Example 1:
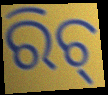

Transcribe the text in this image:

ରିଚ୍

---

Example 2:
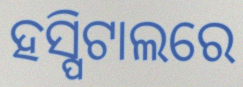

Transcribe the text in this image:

ହସ୍ପିଟାଲରେ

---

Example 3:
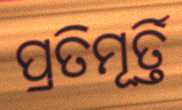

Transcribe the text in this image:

ପ୍ରତିମୂର୍ତ୍ତି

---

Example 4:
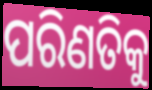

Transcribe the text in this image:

ପରିଣତିକୁ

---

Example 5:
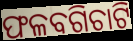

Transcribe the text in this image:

ଫଳବଗିଚାଟି